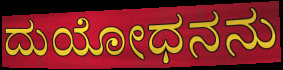
ದುಯೋಧನನು